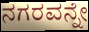
ನಗರವನ್ನೇ